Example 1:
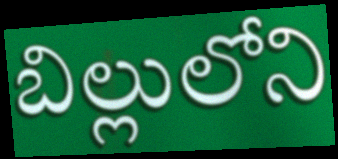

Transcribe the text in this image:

బిల్లులోని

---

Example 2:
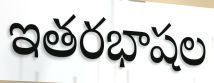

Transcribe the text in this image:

ఇతరభాషల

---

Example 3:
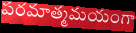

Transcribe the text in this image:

పరమాత్మమయంగా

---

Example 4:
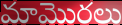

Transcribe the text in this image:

మామొరలు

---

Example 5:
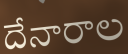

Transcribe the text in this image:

దేనారాల